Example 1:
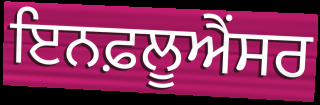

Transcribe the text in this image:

ਇਨਫ਼ਲੂਐਂਸਰ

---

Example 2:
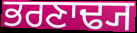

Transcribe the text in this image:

ਭਰਣਾਢ੍ਯ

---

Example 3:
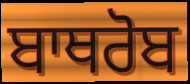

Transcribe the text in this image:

ਬਾਥਰੋਬ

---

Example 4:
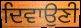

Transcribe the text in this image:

ਦਿਵਾਉਣੀ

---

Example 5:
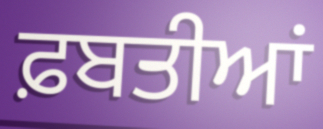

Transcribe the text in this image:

ਫ਼ਬਤੀਆਂ